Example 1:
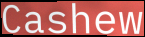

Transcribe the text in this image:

Cashew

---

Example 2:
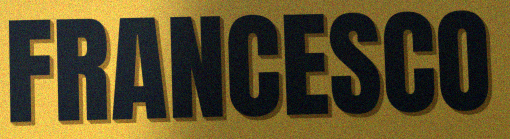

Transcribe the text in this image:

FRANCESCO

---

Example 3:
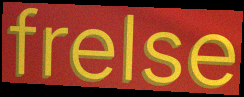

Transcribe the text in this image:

frelse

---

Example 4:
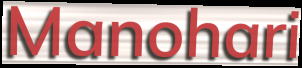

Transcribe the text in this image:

Manohari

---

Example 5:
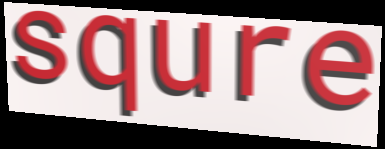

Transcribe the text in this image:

squre